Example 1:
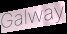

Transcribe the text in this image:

Galway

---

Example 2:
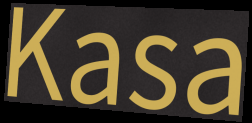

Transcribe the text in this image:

Kasa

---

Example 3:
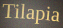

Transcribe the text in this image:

Tilapia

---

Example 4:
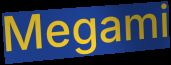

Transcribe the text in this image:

Megami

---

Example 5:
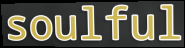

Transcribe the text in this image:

soulful